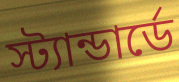
স্ট্যান্ডার্ডে